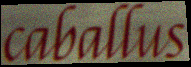
caballus